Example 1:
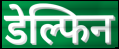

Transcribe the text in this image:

डेल्फिन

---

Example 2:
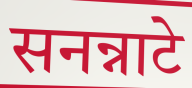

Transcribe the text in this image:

सनन्नाटे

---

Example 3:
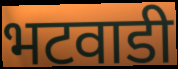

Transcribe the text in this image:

भटवाडी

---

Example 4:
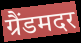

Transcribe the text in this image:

ग्रैंडमदर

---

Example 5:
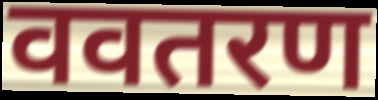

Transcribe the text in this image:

ववतरण